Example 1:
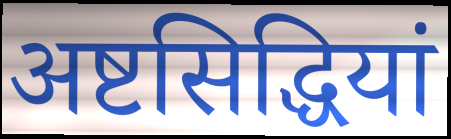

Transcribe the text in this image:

अष्टसिद्धियां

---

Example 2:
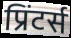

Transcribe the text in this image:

प्रिंटर्स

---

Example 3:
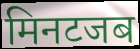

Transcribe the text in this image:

मिनटजब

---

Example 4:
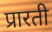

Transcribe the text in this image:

प्रारती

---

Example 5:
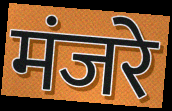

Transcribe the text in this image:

मंजरे